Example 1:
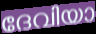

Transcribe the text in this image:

ദേവിയാ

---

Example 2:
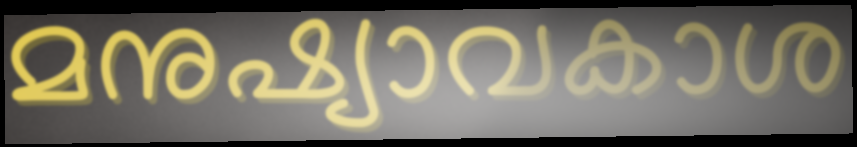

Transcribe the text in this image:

മനുഷ്യാവകാശ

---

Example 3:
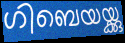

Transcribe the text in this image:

ഗിബെയയ്ക്കു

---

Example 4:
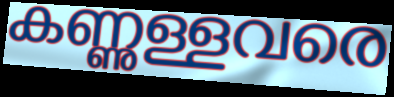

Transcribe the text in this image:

കണ്ണുള്ളവരെ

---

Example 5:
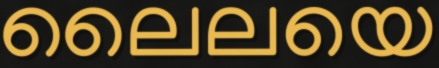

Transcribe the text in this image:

ലൈലയെ